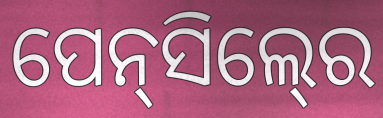
ପେନ୍‍ସିଲ୍‍ରେ